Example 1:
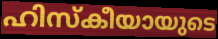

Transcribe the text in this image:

ഹിസ്കീയായുടെ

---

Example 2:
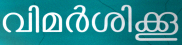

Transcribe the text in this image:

വിമർശിക്കൂ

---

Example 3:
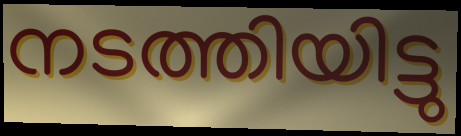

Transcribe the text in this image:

നടത്തിയിട്ടു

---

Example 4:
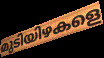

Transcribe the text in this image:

മുടിയിഴകളെ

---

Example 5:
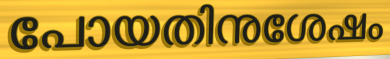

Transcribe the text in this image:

പോയതിനുശേഷം